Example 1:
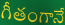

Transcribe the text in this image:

గీతంగానే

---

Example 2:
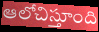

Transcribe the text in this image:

ఆలోచిస్తూంది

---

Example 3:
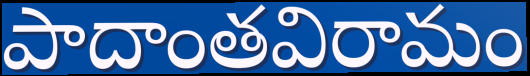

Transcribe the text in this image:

పాదాంతవిరామం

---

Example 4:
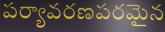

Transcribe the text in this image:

పర్యావరణపరమైన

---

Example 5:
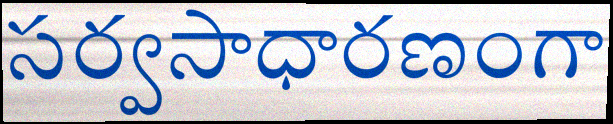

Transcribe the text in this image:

సర్వసాధారణంగా